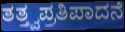
ತತ್ತ್ವಪ್ರತಿಪಾದನೆ